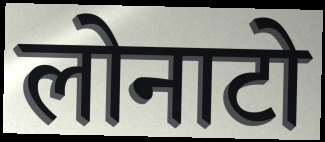
लोनाटो